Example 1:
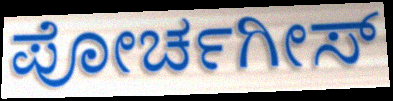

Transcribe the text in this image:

ಪೋರ್ಚಗೀಸ್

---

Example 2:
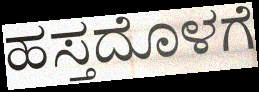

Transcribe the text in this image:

ಹಸ್ತದೊಳಗೆ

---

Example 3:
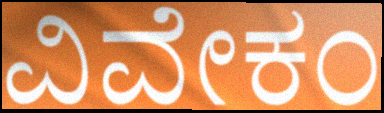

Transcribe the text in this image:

ವಿವೇಕಂ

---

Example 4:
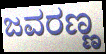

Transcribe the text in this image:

ಜವರಣ್ಣ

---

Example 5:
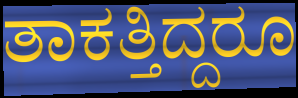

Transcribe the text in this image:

ತಾಕತ್ತಿದ್ದರೂ